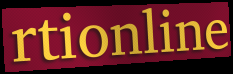
rtionline